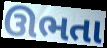
ઊભતા